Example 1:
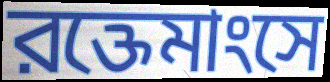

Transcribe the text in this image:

রক্তেমাংসে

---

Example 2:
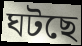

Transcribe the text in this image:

ঘটছে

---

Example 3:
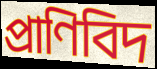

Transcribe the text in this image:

প্রাণিবিদ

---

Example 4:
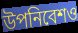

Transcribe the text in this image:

উপনিবেশও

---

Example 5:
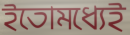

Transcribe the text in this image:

ইতোমধ্যেই